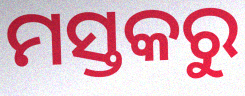
ମସ୍ତକରୁ